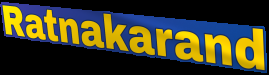
Ratnakarand